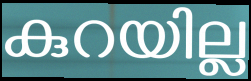
കുറയില്ല